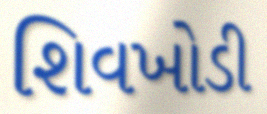
શિવખોડી